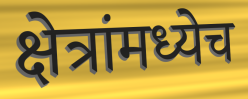
क्षेत्रांमध्येच